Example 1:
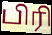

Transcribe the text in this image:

பிரி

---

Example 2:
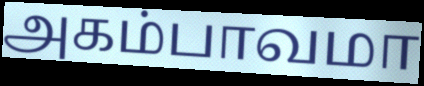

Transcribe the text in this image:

அகம்பாவமா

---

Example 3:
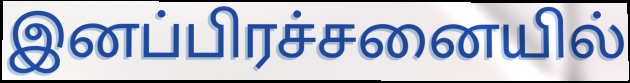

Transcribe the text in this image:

இனப்பிரச்சனையில்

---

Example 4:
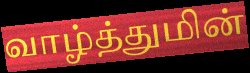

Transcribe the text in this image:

வாழ்த்துமின்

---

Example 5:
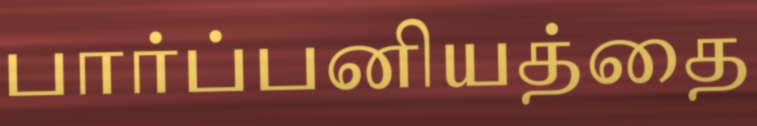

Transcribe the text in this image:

பார்ப்பனியத்தை